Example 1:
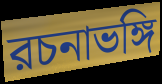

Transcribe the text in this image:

রচনাভঙ্গি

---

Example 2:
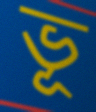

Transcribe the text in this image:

ভূ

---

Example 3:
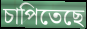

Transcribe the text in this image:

চাপিতেছে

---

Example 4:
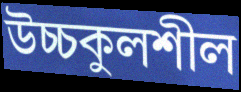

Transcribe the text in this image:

উচ্চকুলশীল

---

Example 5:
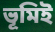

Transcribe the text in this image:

ভূমিই